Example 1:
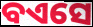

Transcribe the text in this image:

ବଏସେ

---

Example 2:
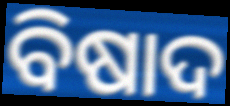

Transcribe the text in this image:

ବିଷାଦ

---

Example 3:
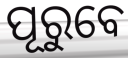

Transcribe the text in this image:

ପୂରୁବେ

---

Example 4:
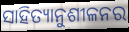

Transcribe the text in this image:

ସାହିତ୍ୟାନୁଶୀଳନର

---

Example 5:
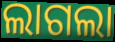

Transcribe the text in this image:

ଲାଗଲା